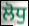
ਲੋਧੁ